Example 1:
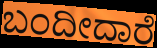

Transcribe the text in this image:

ಬಂದೀದಾರೆ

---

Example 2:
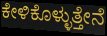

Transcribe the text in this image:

ಕೇಳಿಕೊಳ್ಳುತ್ತೇನೆ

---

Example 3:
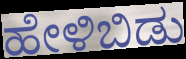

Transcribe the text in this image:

ಹೇಳಿಬಿಡು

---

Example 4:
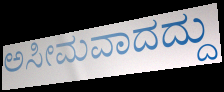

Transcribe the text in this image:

ಅಸೀಮವಾದದ್ದು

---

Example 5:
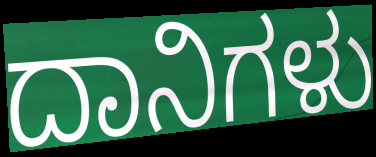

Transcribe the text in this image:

ದಾನಿಗಳು